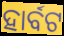
ହାର୍ବଟ